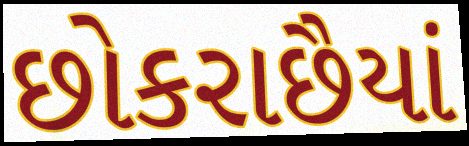
છોકરાછૈયાં